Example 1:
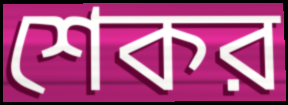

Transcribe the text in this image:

শেকর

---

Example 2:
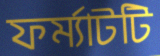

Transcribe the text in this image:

ফর্ম্যাটটি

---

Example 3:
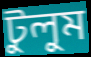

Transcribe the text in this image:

টুলুম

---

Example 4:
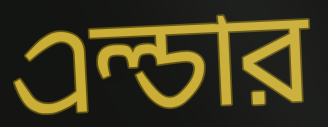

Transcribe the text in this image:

এল্ডার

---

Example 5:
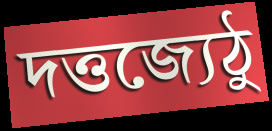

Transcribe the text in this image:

দত্তজ্যেঠু